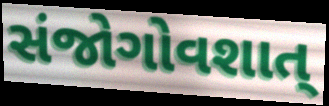
સંજોગોવશાત્